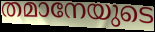
തമാനേയുടെ